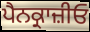
ਪੈਨਕ੍ਰਾਜ਼ੀਓ